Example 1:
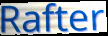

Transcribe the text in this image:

Rafter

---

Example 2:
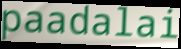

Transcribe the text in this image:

paadalai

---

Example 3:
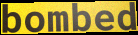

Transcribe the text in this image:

bombed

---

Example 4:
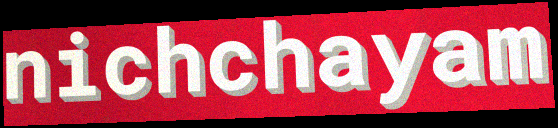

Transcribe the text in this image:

nichchayam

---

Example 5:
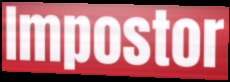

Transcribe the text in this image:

Impostor